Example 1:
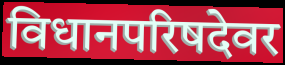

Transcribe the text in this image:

विधानपरिषदेवर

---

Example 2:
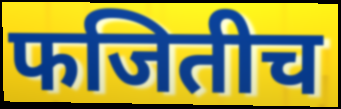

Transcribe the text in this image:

फजितीच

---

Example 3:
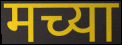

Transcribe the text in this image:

मच्या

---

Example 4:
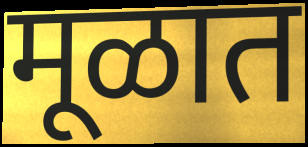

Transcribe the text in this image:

मूळात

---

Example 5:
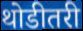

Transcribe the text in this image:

थोडीतरी